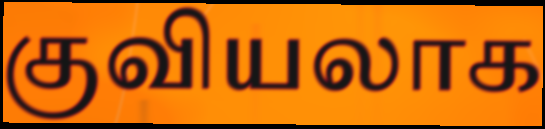
குவியலாக